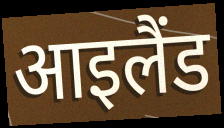
आइलैंड